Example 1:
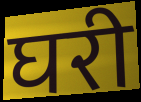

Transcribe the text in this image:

घरी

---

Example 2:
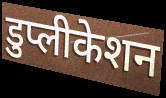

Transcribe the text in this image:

डुप्लीकेशन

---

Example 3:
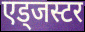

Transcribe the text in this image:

एड्जस्टर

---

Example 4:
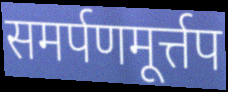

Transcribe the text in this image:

समर्पणमूर्त्तप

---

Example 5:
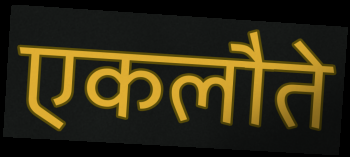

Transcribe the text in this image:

एकलौते